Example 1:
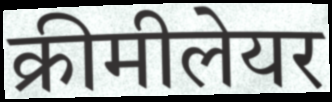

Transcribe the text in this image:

क्रीमीलेयर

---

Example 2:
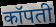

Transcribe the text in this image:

कॉपती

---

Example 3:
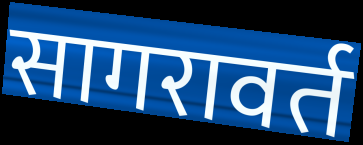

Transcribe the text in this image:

सागरावर्त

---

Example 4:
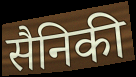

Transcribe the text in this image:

सैनिकी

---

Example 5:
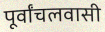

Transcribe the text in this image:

पूर्वांचलवासी